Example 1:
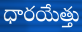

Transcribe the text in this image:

ధారయేత్తు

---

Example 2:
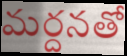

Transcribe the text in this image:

మర్దనతో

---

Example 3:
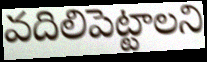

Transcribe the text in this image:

వదిలిపెట్టాలని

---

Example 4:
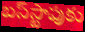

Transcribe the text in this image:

బస్‌స్టాపుకు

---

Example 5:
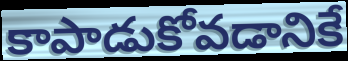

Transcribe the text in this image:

కాపాడుకోవడానికే